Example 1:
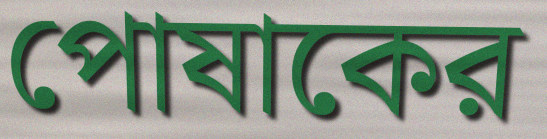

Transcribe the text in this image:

পোষাকের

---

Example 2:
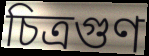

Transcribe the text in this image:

চিত্রগুণ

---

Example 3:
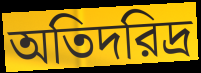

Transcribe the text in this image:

অতিদরিদ্র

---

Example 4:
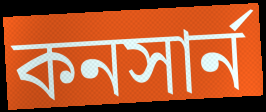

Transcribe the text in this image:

কনসার্ন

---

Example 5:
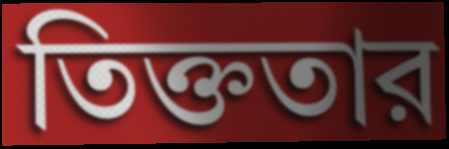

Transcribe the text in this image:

তিক্ততার